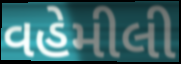
વહેમીલી